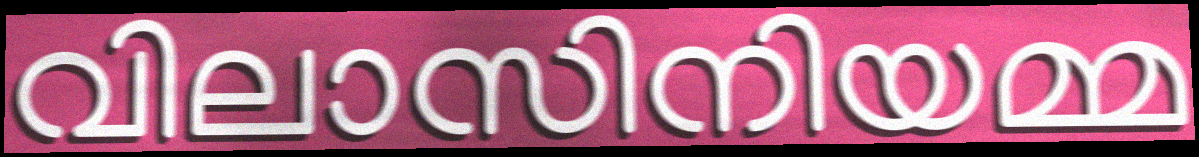
വിലാസിനിയമ്മ